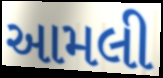
આમલી